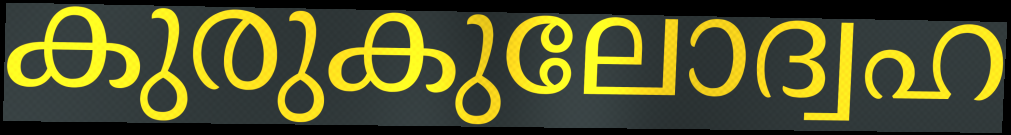
കുരുകുലോദ്വഹ